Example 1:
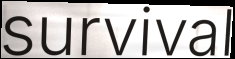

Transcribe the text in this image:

survival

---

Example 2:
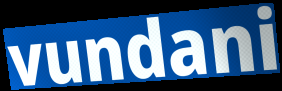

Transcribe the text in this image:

vundani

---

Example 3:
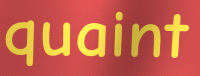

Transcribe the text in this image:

quaint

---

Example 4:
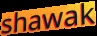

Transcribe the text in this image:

shawak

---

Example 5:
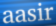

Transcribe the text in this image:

aasir